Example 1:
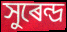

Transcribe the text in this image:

সুৰেন্দ্ৰ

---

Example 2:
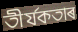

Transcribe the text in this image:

তীৰ্যকতাৰ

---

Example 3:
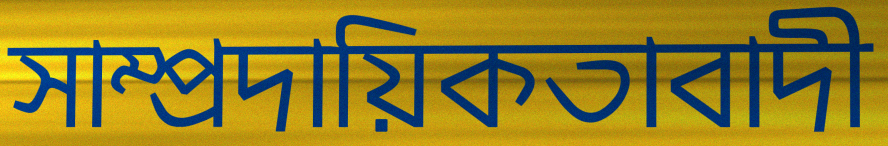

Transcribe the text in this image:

সাম্প্ৰদায়িকতাবাদী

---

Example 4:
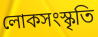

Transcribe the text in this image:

লোকসংস্কৃতি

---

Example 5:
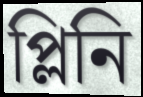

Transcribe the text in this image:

প্লিনি